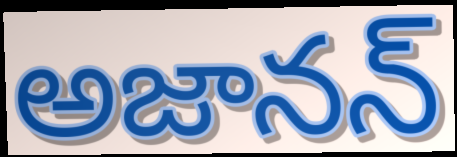
అజానన్